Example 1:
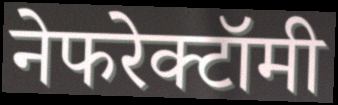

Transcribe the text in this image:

नेफरेक्टॉमी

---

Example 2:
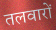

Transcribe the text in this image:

तलवारों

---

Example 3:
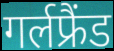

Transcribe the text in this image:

गर्लफ्रैंड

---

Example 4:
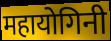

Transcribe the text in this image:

महायोगिनी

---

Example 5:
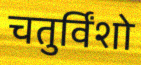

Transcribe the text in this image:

चतुर्विंशो